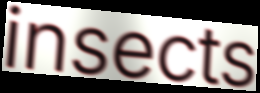
insects